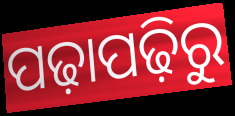
ପଢ଼ାପଢ଼ିରୁ